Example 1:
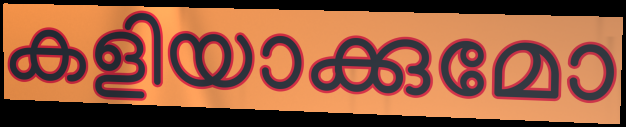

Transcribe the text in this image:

കളിയാക്കുമോ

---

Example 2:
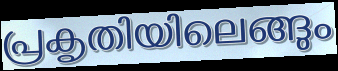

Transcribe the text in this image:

പ്രകൃതിയിലെങ്ങും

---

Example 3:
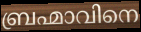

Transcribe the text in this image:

ബ്രഹ്മാവിനെ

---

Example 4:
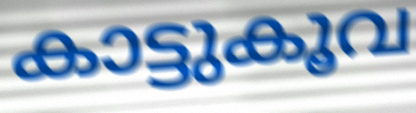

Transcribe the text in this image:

കാട്ടുകൂവ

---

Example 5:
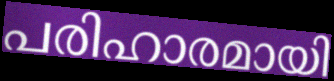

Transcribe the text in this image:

പരിഹാരമായി